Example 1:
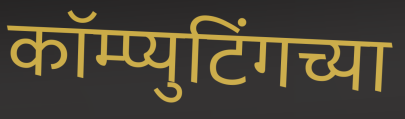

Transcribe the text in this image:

कॉम्प्युटिंगच्या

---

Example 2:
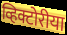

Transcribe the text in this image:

व्हिक्टोरीया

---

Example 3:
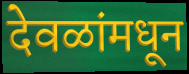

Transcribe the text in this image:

देवळांमधून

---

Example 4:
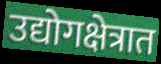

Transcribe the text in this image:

उद्योगक्षेत्रात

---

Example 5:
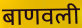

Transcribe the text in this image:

बाणवली